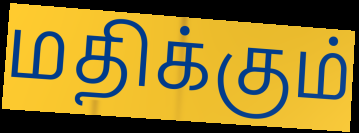
மதிக்கும்